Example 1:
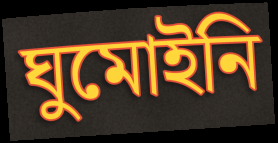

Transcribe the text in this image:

ঘুমোইনি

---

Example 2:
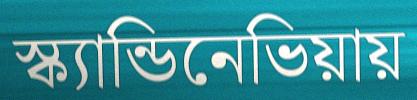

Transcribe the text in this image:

স্ক্যান্ডিনেভিয়ায়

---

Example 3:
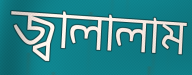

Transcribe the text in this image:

জ্বালালাম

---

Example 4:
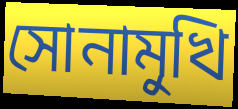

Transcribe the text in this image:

সোনামুখি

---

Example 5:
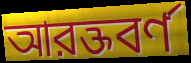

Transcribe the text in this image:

আরক্তবর্ণ